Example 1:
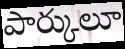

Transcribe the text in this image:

పార్కులూ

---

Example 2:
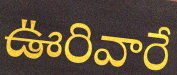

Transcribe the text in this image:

ఊరివారే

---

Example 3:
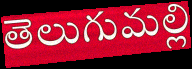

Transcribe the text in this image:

తెలుగుమల్లి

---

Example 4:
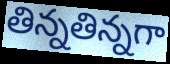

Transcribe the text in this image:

తిన్నతిన్నగా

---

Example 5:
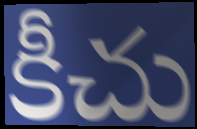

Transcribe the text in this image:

కీచు